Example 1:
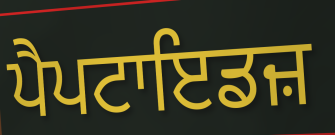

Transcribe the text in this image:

ਪੈਪਟਾਇਡਜ਼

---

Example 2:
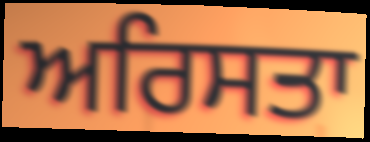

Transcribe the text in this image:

ਅਰਿਸਤਾ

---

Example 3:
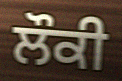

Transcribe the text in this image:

ਲੌਕੀ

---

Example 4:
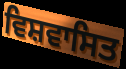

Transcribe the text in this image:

ਵਿਸ਼ਵਾਸਿਤ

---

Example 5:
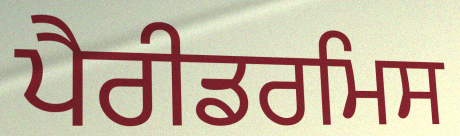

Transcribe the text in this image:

ਪੈਰੀਡਰਮਿਸ